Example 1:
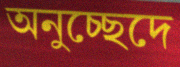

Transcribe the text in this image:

অনুচ্ছেদে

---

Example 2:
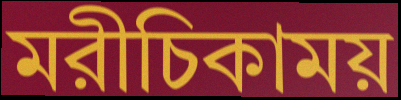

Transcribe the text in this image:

মরীচিকাময়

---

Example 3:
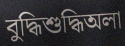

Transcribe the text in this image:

বুদ্ধিশুদ্ধিঅলা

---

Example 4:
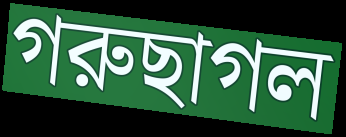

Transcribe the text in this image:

গরুছাগল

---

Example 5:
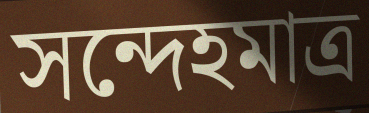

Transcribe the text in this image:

সন্দেহমাত্র